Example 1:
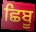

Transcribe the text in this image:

ਛਿਬੂ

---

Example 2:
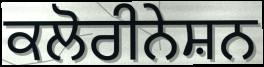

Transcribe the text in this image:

ਕਲੋਰੀਨੇਸ਼ਨ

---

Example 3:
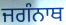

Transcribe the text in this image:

ਜਗੰਨਾਥ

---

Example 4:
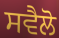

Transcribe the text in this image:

ਸਵੈਲੋ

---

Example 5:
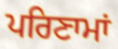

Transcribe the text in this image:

ਪਰਿਣਾਮਾਂ